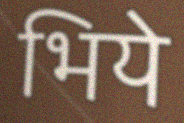
भिये